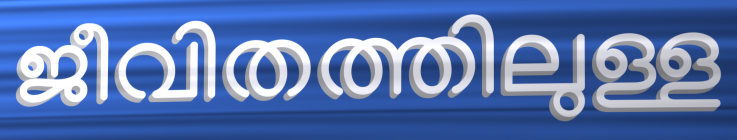
ജീവിതത്തിലുള്ള